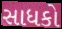
સાધકો